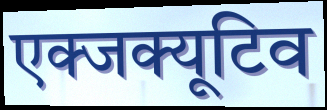
एक्जक्यूटिव